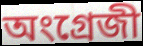
অংগ্ৰেজী